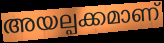
അയല്പക്കമാണ്